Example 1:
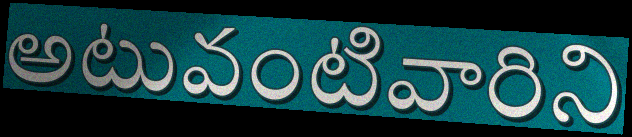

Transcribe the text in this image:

అటువంటివారిని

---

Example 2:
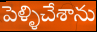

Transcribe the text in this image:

పెళ్ళిచేశాను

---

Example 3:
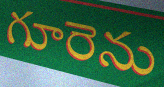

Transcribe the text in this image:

గూరెను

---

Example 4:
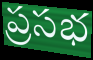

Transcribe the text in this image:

ప్రసభ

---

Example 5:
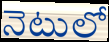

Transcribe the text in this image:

నెటులో